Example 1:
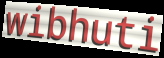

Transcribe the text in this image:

wibhuti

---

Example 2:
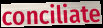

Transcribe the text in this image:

conciliate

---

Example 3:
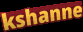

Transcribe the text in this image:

kshanne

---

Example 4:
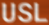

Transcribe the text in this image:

USL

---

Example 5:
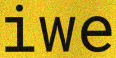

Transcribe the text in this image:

iwe